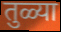
तुळ्या